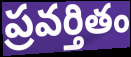
ప్రవర్తితం